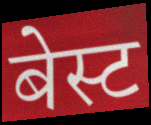
बेस्ट